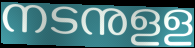
നടനുളള